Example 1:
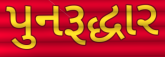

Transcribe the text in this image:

પુનરૂદ્ધાર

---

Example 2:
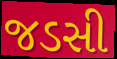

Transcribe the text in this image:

જડસી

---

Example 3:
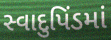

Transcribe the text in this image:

સ્વાદુપિંડમાં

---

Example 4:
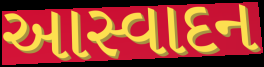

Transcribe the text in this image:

આસ્વાદન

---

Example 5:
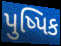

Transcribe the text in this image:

પુષ્પિક